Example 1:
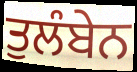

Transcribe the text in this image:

ਤੁਲੰਬੇਨ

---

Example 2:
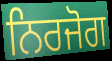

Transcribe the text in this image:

ਨਿਰਜੋਗ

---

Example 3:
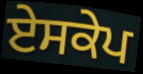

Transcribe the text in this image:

ਏਸਕੇਪ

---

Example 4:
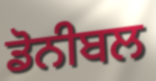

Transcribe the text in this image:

ਡੋਨੀਬਲ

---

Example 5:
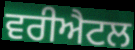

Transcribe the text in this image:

ਵਰੀਐਟਲ